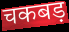
चकबड़